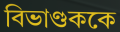
বিভাণ্ডককে